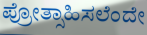
ಪ್ರೋತ್ಸಾಹಿಸಲೆಂದೇ